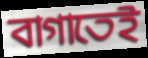
বাগাতেই